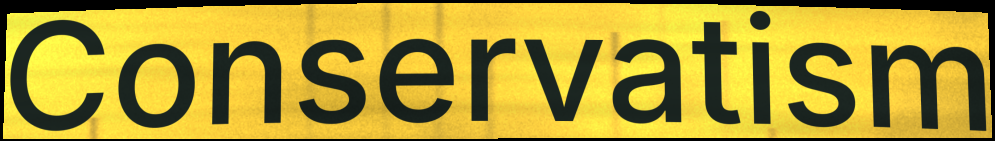
Conservatism